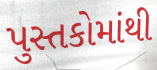
પુસ્તકોમાંથી